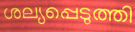
ശല്യപ്പെടുത്തി